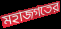
মহাজগতের